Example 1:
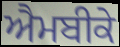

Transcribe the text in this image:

ਐਮਬੀਕੇ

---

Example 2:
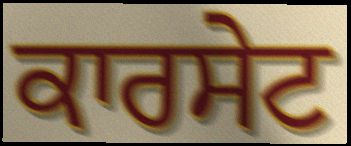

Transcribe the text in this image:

ਕਾਰਸੇਟ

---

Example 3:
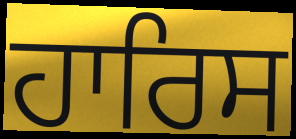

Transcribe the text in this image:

ਹਾਰਿਸ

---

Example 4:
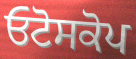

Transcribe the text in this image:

ਓਟੋਸਕੋਪ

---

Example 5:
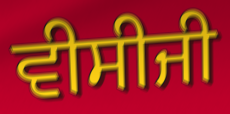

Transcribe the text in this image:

ਵੀਸੀਜੀ